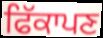
ਫਿੱਕਾਪਣ